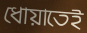
ধোয়াতেই